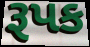
રૂપક